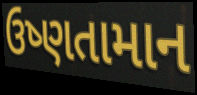
ઉષ્ણતામાન